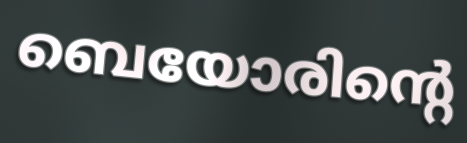
ബെയോരിന്റെ